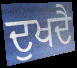
ਦੁਖਦੈ